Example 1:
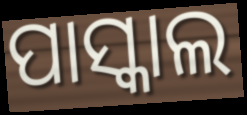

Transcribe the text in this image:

ପାସ୍କାଲ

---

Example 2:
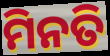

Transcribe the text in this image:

ମିନତି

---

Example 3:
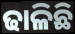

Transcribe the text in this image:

ଢାଳିଛି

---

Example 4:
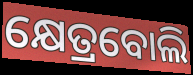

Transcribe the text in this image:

କ୍ଷେତ୍ରବୋଲି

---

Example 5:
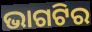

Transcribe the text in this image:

ଭାଗଟିର